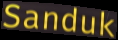
Sanduk